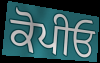
ਕੋਪੀਓ